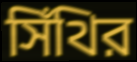
সিঁথির